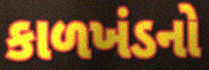
કાળખંડનો